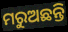
ମରୁଅଛନ୍ତି